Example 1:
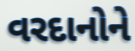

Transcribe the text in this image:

વરદાનોને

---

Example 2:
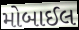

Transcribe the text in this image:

મોબાઈલ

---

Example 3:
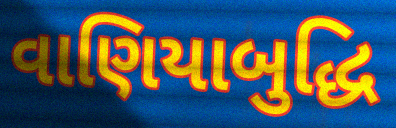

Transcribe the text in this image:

વાણિયાબુદ્ધિ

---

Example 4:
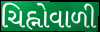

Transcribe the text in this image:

ચિહ્નોવાળી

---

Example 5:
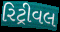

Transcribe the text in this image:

રિટ્રીવલ